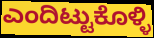
ಎಂದಿಟ್ಟುಕೊಳ್ಳಿ